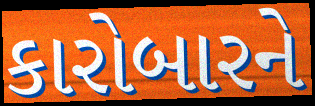
કારોબારને